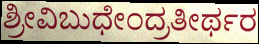
ಶ್ರೀವಿಬುಧೇಂದ್ರತೀರ್ಥರ